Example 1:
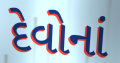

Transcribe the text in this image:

દેવોનાં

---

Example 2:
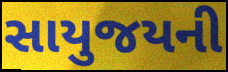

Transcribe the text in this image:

સાયુજયની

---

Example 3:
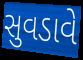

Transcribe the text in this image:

સુવડાવે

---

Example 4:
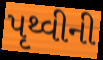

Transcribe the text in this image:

પૃથ્વીની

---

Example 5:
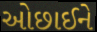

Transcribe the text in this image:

ઓછાઈને